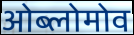
ओब्लोमोव